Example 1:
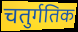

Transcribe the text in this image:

चतुर्गतिक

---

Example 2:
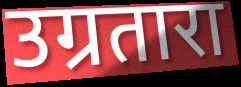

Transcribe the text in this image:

उग्रतारा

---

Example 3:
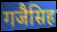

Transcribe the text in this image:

गजैसिह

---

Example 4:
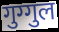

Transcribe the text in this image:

गुग्‍गुल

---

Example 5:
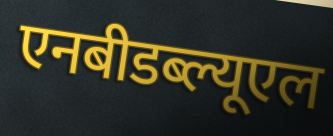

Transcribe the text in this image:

एनबीडब्ल्यूएल